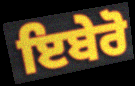
ਇਬੇਰੋ